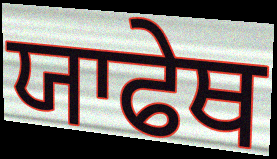
ਯਾਫੇਥ